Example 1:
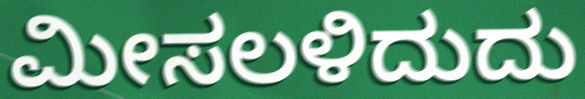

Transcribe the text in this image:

ಮೀಸಲಳಿದುದು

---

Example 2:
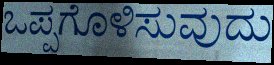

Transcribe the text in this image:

ಒಪ್ಪಗೊಳಿಸುವುದು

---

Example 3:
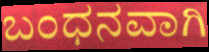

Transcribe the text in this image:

ಬಂಧನವಾಗಿ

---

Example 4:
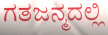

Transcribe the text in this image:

ಗತಜನ್ಮದಲ್ಲಿ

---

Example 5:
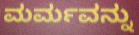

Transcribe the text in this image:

ಮರ್ಮವನ್ನು